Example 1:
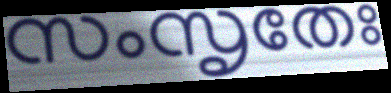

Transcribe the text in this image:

സംസൃതേഃ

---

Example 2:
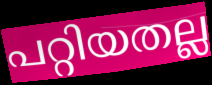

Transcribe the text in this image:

പറ്റിയതല്ല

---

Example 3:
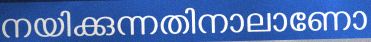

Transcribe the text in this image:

നയിക്കുന്നതിനാലാണോ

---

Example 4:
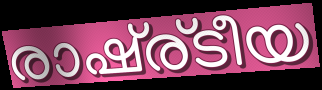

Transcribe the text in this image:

രാഷ്ര്ടീയ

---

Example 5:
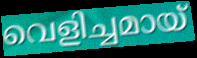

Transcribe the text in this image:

വെളിച്ചമായ്